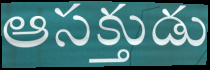
ఆసక్తుడు